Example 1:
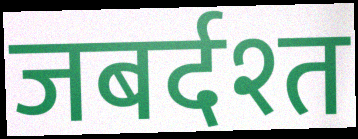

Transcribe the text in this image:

जबर्दश्त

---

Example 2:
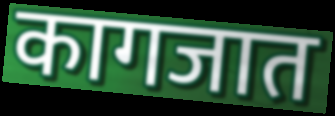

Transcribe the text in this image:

कागजात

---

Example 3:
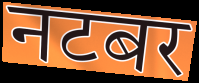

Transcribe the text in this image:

नटबर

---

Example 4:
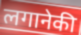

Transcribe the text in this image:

लगानेकी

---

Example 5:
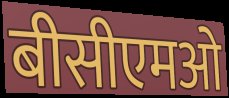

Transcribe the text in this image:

बीसीएमओ